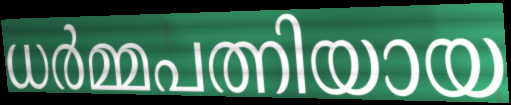
ധർമ്മപത്നിയായ